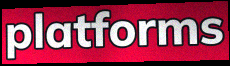
platforms